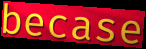
becase